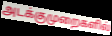
அடக்குமுறைகளில்